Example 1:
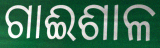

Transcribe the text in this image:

ଗାଈଶାଳ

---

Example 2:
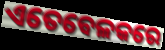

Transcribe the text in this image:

ଏତେବେଳକରେ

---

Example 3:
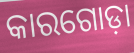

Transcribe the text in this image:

କାରଗୋଡ଼ା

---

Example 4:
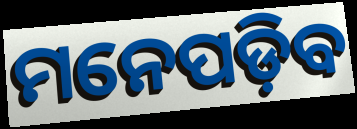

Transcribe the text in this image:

ମନେପଡ଼ିବ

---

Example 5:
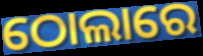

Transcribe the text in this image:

ଠୋଲାରେ